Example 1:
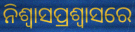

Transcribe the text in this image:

ନିଶ୍ୱାସପ୍ରଶ୍ୱାସରେ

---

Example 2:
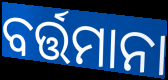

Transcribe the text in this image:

ବର୍ତ୍ତମାନା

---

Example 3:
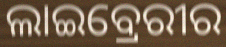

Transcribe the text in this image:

ଲାଇବ୍ରେରୀର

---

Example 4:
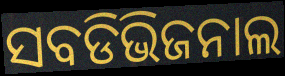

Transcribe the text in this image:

ସବଡିଭିଜନାଲ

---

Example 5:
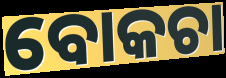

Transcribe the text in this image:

ବୋକଚା